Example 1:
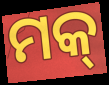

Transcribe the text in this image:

ମକ୍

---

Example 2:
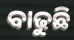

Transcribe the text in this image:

ବାଢୁଛି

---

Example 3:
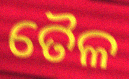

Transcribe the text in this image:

ତୈଳ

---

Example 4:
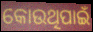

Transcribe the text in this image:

କୋଉଥିପାଇଁ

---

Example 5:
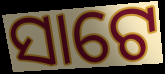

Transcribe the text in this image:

ସାଟେ